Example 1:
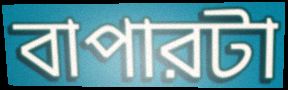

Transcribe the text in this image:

বাপারটা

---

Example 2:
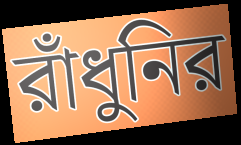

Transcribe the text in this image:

রাঁধুনির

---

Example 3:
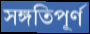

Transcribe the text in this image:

সঙ্গতিপূর্ণ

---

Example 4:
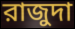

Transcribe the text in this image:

রাজুদা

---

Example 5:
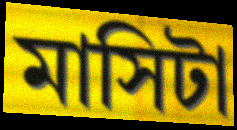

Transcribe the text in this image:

মাসিটা